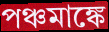
পঞ্চমাঙ্কে